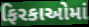
ફિરકાઓમાં